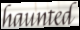
haunted